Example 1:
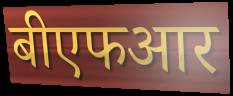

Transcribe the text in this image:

बीएफआर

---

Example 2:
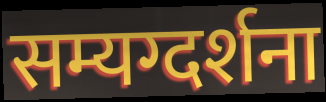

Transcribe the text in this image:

सम्यग्दर्शना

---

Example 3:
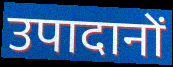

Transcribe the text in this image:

उपादानों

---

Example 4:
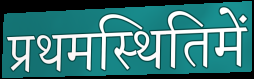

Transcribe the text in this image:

प्रथमस्थितिमें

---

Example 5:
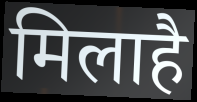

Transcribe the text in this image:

मिलाहै